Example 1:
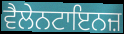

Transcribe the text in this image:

ਵੈਲੇਨਟਾਇਨਜ਼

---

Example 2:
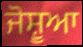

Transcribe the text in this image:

ਜੋਸ਼ੂਆ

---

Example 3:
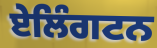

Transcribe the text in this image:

ਏਲਿੰਗਟਨ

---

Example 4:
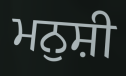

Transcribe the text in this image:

ਮਨੁਸ਼ੀ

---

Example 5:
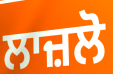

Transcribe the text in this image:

ਲਾਜ਼ਲੋ